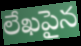
లేఖపైన